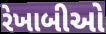
રેખાબીઓ